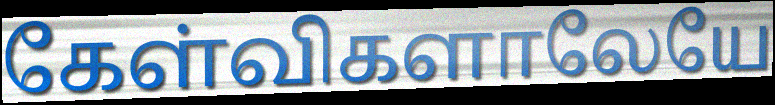
கேள்விகளாலேயே